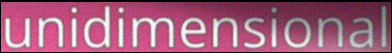
unidimensional